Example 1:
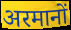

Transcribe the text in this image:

अरमानों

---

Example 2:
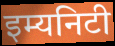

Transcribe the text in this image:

इम्यनिटी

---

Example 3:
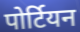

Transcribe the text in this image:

पोर्टियन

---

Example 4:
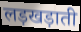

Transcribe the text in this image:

लड़खड़ाती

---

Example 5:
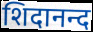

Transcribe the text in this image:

शिदानन्द